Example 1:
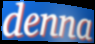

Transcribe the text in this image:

denna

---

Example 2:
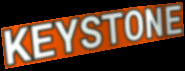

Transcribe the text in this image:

KEYSTONE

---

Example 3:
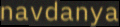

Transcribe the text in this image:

navdanya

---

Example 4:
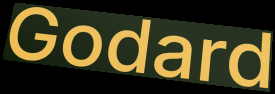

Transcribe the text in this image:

Godard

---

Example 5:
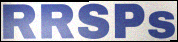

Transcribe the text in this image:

RRSPs